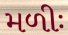
મળીઃ